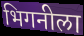
भिगनीला